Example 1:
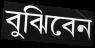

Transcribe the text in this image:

বুঝিবেন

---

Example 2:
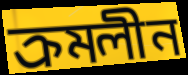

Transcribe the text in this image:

ক্রমলীন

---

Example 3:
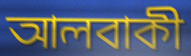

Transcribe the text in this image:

আলবাকী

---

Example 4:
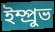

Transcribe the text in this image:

ইম্প্রুভ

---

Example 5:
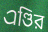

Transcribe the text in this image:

এণ্ডির